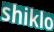
shiklo